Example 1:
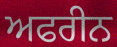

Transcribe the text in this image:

ਅਫਰੀਨ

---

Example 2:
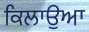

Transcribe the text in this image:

ਕਿਲਾਉਆ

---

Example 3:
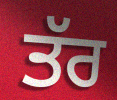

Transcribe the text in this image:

ਤੱਰ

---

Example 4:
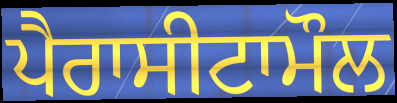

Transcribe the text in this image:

ਪੈਰਾਸੀਟਾਮੌਲ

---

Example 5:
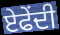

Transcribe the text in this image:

ਏਫੇਂਦੀ